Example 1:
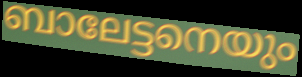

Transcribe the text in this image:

ബാലേട്ടനെയും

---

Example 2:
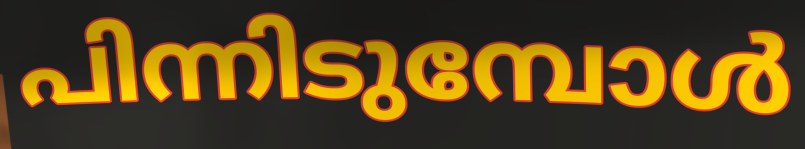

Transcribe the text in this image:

പിന്നിടുമ്പോൾ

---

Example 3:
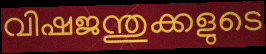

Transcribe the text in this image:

വിഷജന്തുക്കളുടെ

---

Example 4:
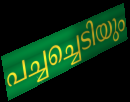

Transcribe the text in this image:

പച്ചച്ചെടിയും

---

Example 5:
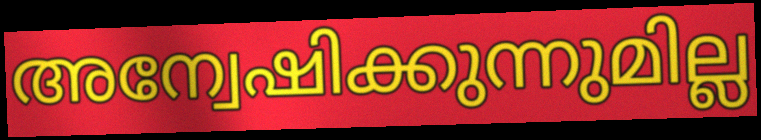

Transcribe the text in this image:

അന്വേഷിക്കുന്നുമില്ല